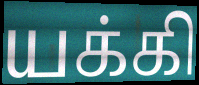
யக்கி